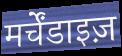
मर्चेंडाइज़